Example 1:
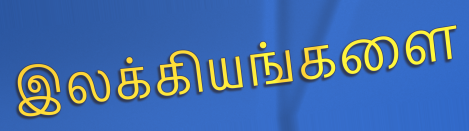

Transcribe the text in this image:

இலக்கியங்களை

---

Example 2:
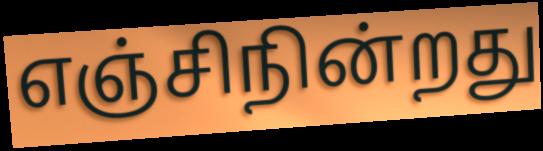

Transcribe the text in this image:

எஞ்சிநின்றது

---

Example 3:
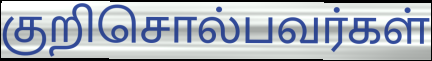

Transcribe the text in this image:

குறிசொல்பவர்கள்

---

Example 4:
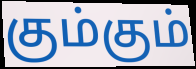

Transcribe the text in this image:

கும்கும்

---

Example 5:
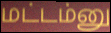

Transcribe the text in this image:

மட்டம்னு